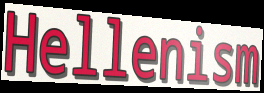
Hellenism